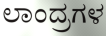
ಲಾಂದ್ರಗಳ